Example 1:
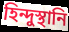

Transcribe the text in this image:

হিন্দুস্থানি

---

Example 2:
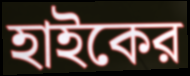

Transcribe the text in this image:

হাইকের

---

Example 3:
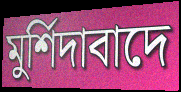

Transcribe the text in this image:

মুর্শিদাবাদে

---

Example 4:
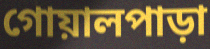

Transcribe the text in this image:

গোয়ালপাড়া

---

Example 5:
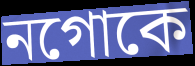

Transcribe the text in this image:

নগোকে